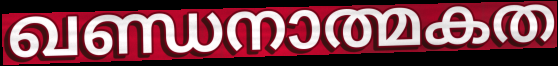
ഖണ്ഡനാത്മകത